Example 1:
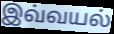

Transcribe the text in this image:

இவ்வயல்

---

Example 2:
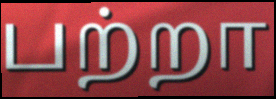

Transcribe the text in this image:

பற்றா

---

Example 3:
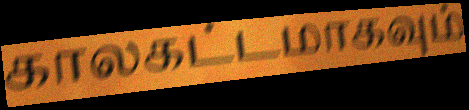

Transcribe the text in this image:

காலகட்டமாகவும்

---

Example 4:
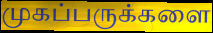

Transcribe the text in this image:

முகப்பருக்களை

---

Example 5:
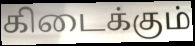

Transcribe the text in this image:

கிடைக்கும்